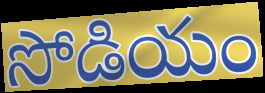
సోడియం